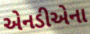
એનડીએના